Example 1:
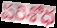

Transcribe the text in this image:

పరిశోధ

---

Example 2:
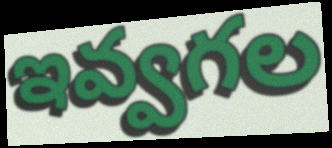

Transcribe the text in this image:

ఇవ్వగల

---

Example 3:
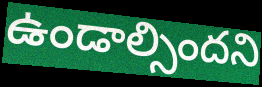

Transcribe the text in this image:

ఉండాల్సిందని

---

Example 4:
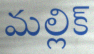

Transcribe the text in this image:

మల్లిక్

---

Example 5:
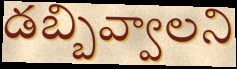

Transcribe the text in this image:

డబ్బివ్వాలని